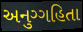
અનુગ્ગહિતા